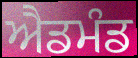
ਐਡਮੰਡ